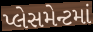
પ્લેસમેન્ટમાં